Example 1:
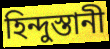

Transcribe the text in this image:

হিন্দুস্তানী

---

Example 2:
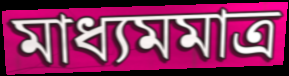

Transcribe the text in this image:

মাধ্যমমাত্র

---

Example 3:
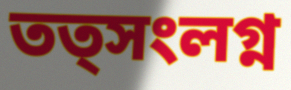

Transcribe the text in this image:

তত্সংলগ্ন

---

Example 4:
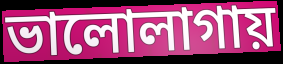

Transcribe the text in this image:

ভালোলাগায়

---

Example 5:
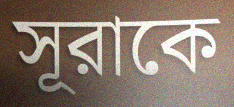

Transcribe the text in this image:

সূরাকে